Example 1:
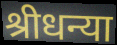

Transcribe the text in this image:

श्रीधन्या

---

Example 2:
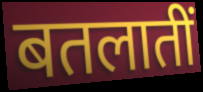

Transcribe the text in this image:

बतलातीं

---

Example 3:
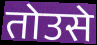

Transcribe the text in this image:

तोउसे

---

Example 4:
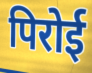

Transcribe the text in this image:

पिरोई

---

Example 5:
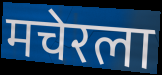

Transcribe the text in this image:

मचेरला